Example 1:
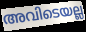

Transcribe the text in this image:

അവിടെയല്ല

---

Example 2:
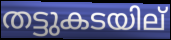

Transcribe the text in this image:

തട്ടുകടയില്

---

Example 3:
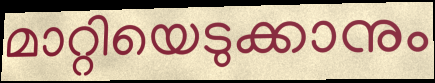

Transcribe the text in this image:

മാറ്റിയെടുക്കാനും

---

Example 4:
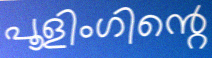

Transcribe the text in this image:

പൂളിംഗിന്റെ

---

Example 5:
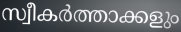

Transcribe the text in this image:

സ്വീകർത്താക്കളും